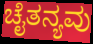
ಚೈತನ್ಯವು